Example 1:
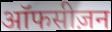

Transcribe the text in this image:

ऑफसीज़न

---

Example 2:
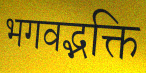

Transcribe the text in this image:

भगवद्भक्ति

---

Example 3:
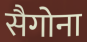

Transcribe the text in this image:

सैगोना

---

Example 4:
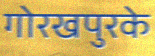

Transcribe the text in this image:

गोरखपुरके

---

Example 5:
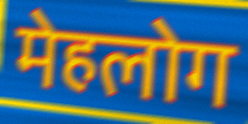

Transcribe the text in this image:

मेहलोग